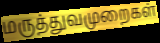
மருத்துவமுறைகள்